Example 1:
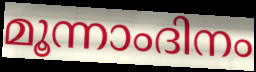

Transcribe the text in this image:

മൂന്നാംദിനം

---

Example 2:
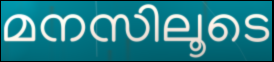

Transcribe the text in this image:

മനസിലൂടെ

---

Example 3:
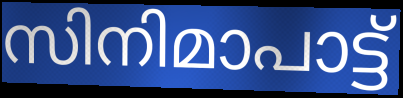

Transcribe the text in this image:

സിനിമാപാട്ട്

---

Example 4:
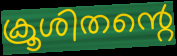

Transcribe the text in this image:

ക്രൂശിതന്റെ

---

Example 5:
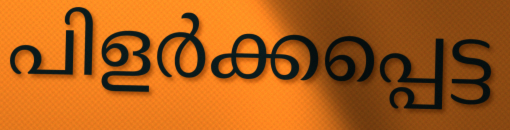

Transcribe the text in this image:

പിളർക്കപ്പെട്ട